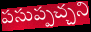
పసుప్పచ్చని